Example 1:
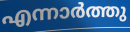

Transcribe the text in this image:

എന്നാർത്തു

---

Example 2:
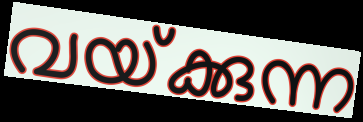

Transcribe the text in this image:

വയ്‌ക്കുന്ന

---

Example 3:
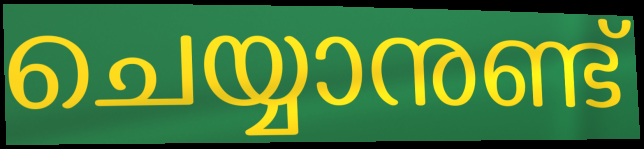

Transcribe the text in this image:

ചെയ്യാനുണ്ട്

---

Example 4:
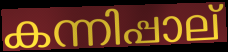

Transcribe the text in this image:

കന്നിപ്പാല്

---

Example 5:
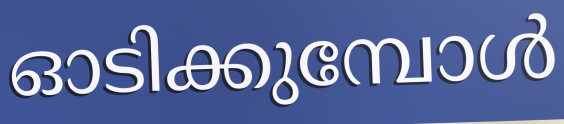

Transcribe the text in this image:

ഓടിക്കുമ്പോൾ